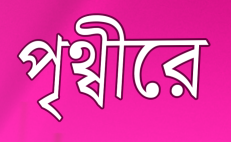
পৃথ্বীরে